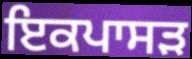
ਇਕਪਾਸੜ